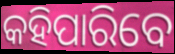
କହିପାରିବେ